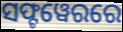
ସଫ୍ଟୱେରରେ